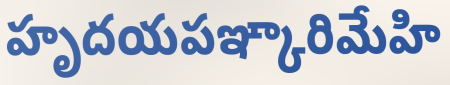
హృదయపఞ్కారిమేహి